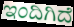
ಇಂದಿಗಿದೆ